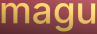
magu